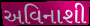
અવિનાશી